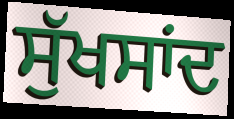
ਸੁੱਖਸਾਂਦ